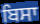
ਬਿਸਾ